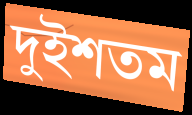
দুইশতম